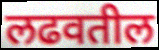
लढवतील